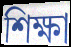
শিক্ষা